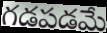
గడపడమే